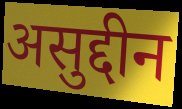
असुद्दीन